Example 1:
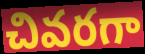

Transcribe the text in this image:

చివరగా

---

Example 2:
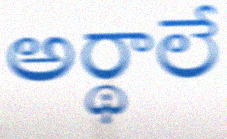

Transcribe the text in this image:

అర్థాలే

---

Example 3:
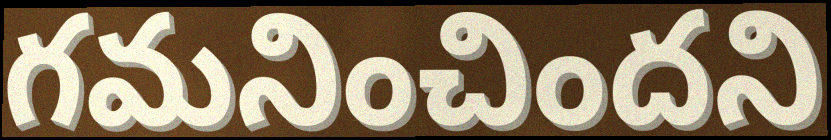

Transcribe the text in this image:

గమనించిందని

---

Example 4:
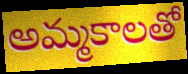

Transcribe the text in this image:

అమ్మకాలతో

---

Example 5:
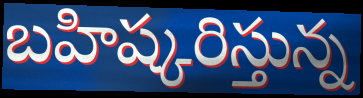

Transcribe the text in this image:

బహిష్కరిస్తున్న